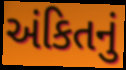
અંકિતનું